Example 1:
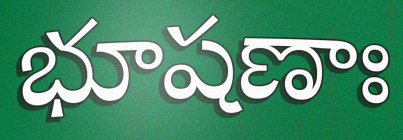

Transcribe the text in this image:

భూషణాః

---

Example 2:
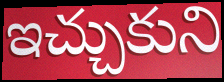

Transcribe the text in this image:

ఇచ్చుకుని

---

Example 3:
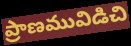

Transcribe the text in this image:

ప్రాణమువిడిచి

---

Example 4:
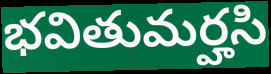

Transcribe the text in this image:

భవితుమర్హసి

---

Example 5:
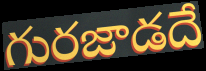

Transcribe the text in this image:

గురజాడదే